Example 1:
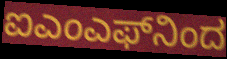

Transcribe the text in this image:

ಐಎಂಎಫ್‌ನಿಂದ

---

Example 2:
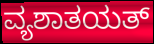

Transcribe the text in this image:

ವ್ಯಶಾತಯತ್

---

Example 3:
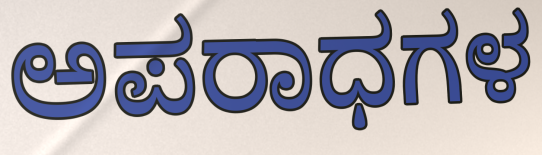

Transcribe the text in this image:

ಅಪರಾಧಗಳ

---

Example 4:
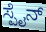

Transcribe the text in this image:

ಸ್ಪೈನ್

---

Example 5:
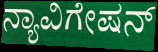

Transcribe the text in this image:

ನ್ಯಾವಿಗೇಷನ್